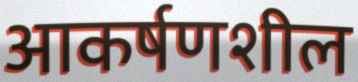
आकर्षणशील